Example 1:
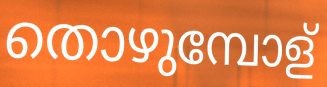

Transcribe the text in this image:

തൊഴുമ്പോള്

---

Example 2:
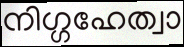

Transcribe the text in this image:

നിഗ്ഗഹേത്വാ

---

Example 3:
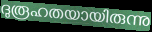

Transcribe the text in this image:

ദുരൂഹതയായിരുന്നു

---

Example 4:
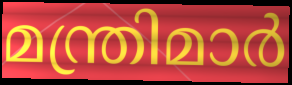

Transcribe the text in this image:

മന്ത്രിമാർ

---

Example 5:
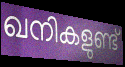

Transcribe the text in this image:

ഖനികളുണ്ട്